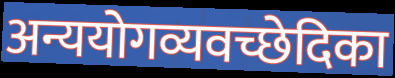
अन्ययोगव्यवच्छेदिका